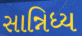
સાન્નિધ્ય